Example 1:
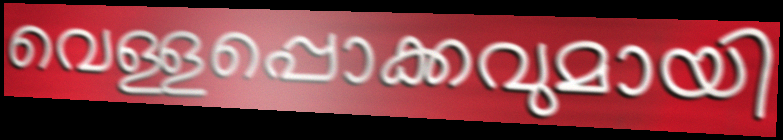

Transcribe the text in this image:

വെള്ളപ്പൊക്കവുമായി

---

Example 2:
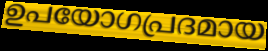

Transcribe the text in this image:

ഉപയോഗപ്രദമായ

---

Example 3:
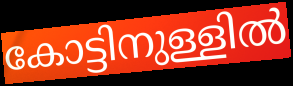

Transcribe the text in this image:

കോട്ടിനുള്ളിൽ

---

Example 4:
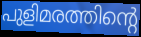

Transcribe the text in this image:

പുളിമരത്തിന്റെ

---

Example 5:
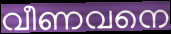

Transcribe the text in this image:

വീണവനെ